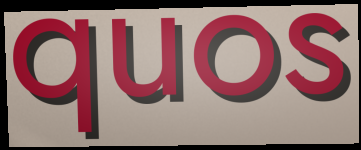
quos